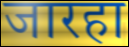
जारहा